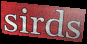
sirds